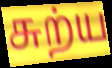
சுற்ய